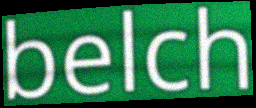
belch